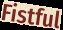
Fistful